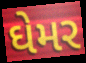
ઘેમર